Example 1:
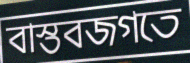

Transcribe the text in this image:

বাস্তবজগতে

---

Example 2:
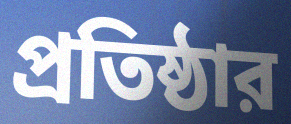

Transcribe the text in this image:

প্রতিষ্ঠার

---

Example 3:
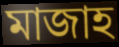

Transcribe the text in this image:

মাজাহ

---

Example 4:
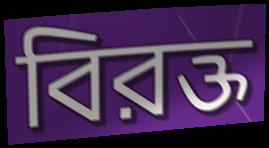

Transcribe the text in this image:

বিরক্ত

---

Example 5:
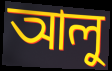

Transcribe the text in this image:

আলু